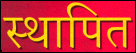
स्थापित